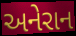
અનેરાન